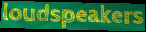
loudspeakers